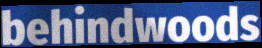
behindwoods